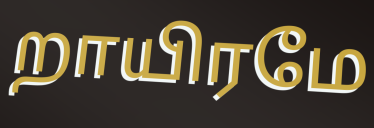
றாயிரமே